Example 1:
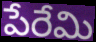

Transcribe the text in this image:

పేరేమి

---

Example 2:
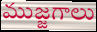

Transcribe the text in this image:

ముజ్జగాలు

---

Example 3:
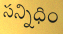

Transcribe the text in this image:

సన్నిధిం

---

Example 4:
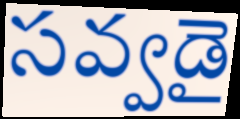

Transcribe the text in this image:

సవ్వడై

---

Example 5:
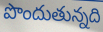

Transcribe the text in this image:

పొందుతున్నది